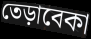
তেড়াবেকা